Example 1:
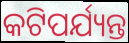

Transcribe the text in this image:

କଟିପର୍ଯ୍ୟନ୍ତ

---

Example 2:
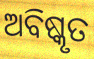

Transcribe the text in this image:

ଅବିଷ୍କୃତ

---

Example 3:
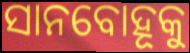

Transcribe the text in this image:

ସାନବୋହୂକୁ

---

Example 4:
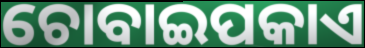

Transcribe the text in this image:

ଚୋବାଇପକାଏ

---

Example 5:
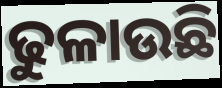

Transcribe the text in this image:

ଢୁଳାଉଛି